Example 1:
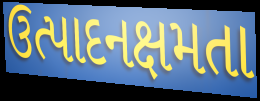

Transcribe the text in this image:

ઉત્પાદનક્ષમતા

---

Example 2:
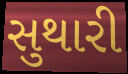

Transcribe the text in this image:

સુથારી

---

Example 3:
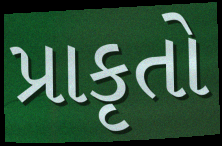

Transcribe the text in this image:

પ્રાકૃતો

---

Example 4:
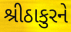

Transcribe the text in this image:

શ્રીઠાકુરને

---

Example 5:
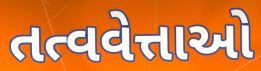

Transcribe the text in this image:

તત્વવેત્તાઓ